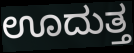
ಊದುತ್ತ